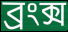
ব্রংক্স